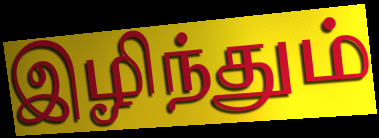
இழிந்தும்